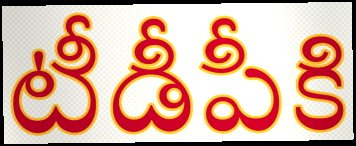
టీడీపీకి